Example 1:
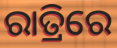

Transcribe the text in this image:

ରାତ୍ରିରେ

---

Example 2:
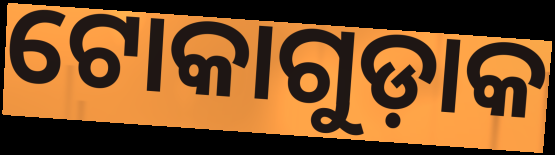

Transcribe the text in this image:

ଟୋକାଗୁଡ଼ାକ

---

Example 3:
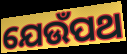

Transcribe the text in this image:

ଯେଉଁପଥ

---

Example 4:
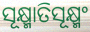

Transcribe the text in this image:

ସୂକ୍ଷ୍ମାତିସୂକ୍ଷ୍ମଂ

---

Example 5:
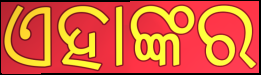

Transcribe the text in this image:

ଏହାଙ୍କର